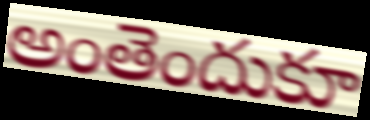
అంతెందుకూ